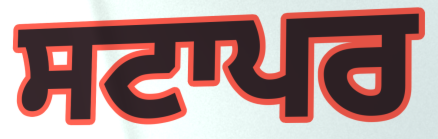
ਸਟਾਪਰ